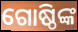
ଗୋଷ୍ଠିଙ୍କ